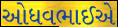
ઓધવભાઈએ